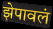
झेपावलं